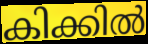
കിക്കിൽ